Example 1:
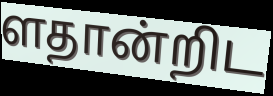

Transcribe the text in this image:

ளதான்றிட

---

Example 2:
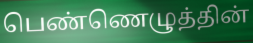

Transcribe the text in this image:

பெண்ணெழுத்தின்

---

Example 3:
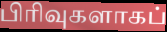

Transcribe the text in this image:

பிரிவுகளாகப்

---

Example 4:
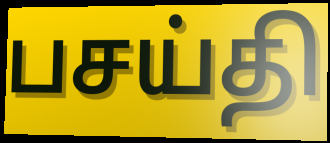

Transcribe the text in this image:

பசய்தி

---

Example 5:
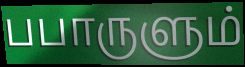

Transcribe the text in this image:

பபாருளும்